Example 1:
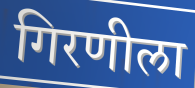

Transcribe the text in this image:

गिरणीला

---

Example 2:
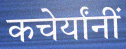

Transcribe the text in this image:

कचेर्यांनीं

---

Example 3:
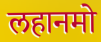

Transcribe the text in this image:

लहानमो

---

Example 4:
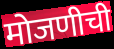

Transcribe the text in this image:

मोजणीची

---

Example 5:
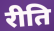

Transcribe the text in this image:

रीति